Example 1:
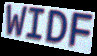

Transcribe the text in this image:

WIDF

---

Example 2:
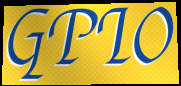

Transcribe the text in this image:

GPIO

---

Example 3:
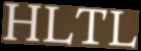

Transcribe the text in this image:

HLTL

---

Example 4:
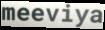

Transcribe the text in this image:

meeviya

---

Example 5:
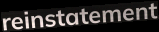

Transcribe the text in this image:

reinstatement